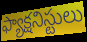
ఫ్యాక్షనిస్టులు